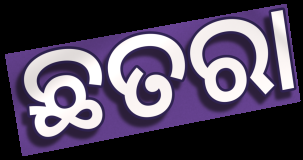
ଛତରା